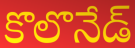
కొలొనేడ్